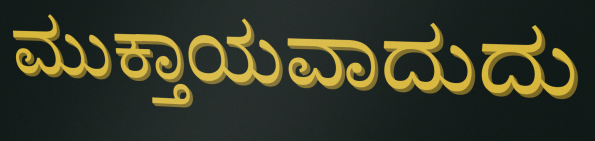
ಮುಕ್ತಾಯವಾದುದು